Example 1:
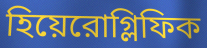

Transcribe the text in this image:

হিয়েরোগ্লিফিক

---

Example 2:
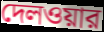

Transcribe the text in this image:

দেলওয়ার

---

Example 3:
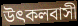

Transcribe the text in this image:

উৎকলবাসী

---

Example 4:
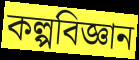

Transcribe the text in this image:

কল্পবিজ্ঞান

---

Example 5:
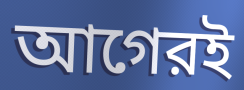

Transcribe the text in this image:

আগেরই